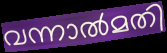
വന്നാൽമതി